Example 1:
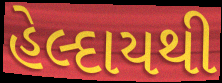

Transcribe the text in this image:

હેલ્દાયથી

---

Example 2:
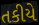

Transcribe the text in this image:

તકીયે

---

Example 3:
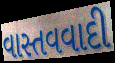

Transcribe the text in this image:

વાસ્તવવાદી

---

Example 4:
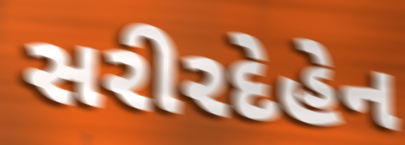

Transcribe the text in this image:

સરીરદેહેન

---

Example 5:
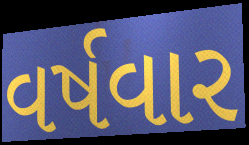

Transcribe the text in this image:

વર્ષવાર